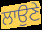
ਲਾਉਣੇ